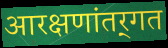
आरक्षणांतर्गत